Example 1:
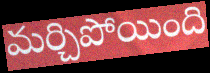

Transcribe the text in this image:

మర్చిపోయింది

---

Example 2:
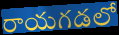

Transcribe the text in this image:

రాయగడలో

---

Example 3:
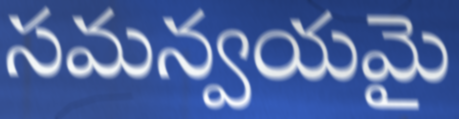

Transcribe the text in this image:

సమన్వయమై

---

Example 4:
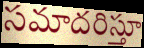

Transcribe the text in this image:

సమాదరిస్తూ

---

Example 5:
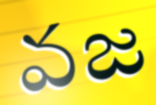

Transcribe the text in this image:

వజ